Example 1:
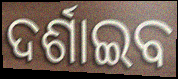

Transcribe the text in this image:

ଦର୍ଶାଇବ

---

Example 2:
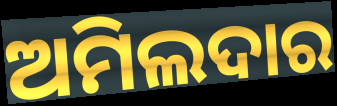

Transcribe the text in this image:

ଅମିଲଦାର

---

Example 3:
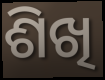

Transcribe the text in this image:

ଶିଖି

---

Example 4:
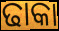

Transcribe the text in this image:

ଢାକା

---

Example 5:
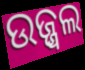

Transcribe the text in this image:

ଉଜ୍ଜ୍ୱଲ